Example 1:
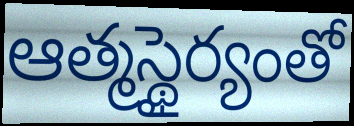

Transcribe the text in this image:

ఆత్మస్థైర్యంతో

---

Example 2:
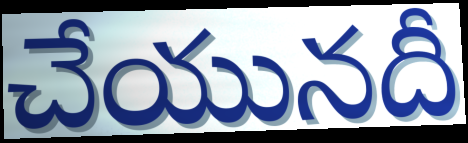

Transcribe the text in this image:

చేయునదీ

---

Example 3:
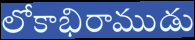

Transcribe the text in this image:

లోకాభిరాముడు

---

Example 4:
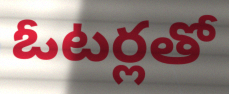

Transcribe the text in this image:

ఓటర్లతో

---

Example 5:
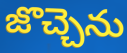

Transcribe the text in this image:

జొచ్చెను